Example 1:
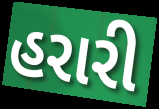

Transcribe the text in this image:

હરારી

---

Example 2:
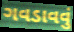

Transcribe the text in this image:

ગવડાવવું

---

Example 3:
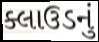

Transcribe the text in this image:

ક્લાઉડનું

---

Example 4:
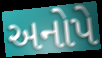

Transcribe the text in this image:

અનોપે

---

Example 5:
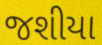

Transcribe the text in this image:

જશીયા